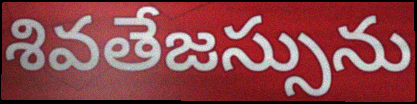
శివతేజస్సును